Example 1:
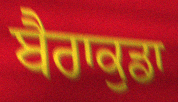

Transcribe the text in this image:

ਬੈਰਾਕੁਡਾ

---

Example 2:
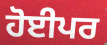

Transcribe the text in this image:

ਹੋਈਪਰ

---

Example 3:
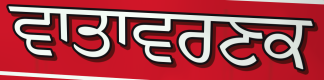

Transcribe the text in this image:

ਵਾਤਾਵਰਣਕ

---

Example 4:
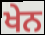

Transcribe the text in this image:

ਖੇਨ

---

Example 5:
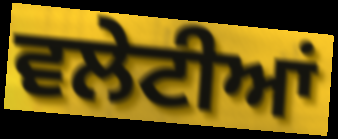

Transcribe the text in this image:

ਵਲੇਟੀਆਂ